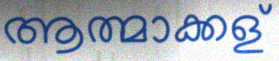
ആത്മാക്കള്